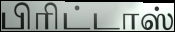
பிரிட்டாஸ்